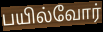
பயில்வோர்